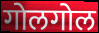
गोलगोल